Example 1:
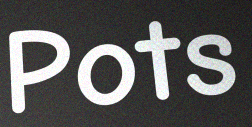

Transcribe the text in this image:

Pots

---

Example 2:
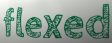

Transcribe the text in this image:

flexed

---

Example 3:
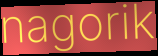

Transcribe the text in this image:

nagorik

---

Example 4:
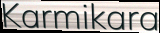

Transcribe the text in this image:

Karmikara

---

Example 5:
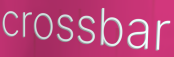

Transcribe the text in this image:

crossbar